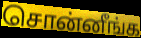
சொன்னீங்க